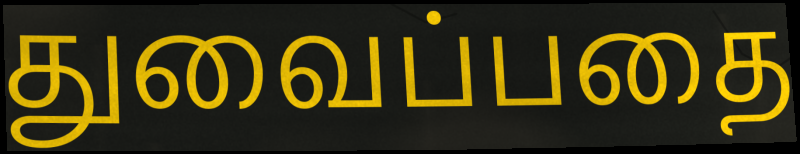
துவைப்பதை